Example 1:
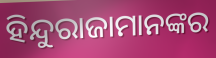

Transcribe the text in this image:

ହିନ୍ଦୁରାଜାମାନଙ୍କର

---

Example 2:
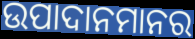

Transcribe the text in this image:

ଉପାଦାନମାନର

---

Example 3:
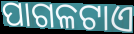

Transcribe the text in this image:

ପାଗଳଟାଏ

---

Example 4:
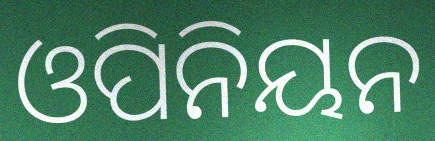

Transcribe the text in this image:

ଓପିନିୟନ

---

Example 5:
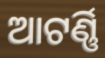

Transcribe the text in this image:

ଆଟର୍ଣ୍ଣି